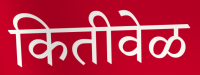
कितीवेळ